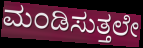
ಮಂಡಿಸುತ್ತಲೇ